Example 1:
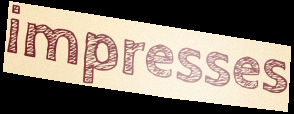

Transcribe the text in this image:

impresses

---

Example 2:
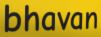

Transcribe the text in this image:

bhavan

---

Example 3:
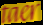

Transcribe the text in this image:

taer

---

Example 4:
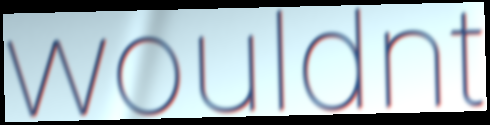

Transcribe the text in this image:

wouldnt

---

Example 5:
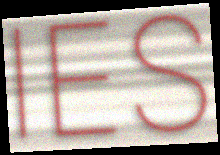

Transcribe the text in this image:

IES